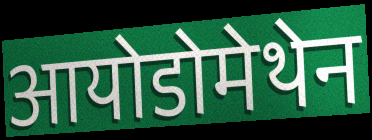
आयोडोमेथेन